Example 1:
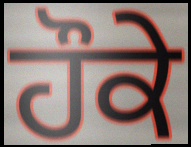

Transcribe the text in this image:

ਹੌਕੇ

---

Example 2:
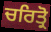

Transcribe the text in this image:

ਚਰਿਤ੍ਰੋ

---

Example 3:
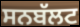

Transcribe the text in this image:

ਸਨਬੱਲਟ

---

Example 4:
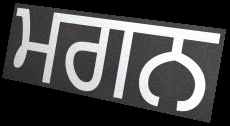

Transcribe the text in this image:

ਮਗਨ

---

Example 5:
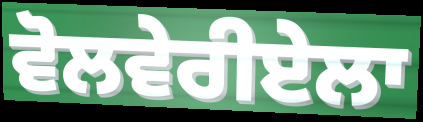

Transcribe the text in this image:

ਵੋਲਵੇਰੀਏਲਾ